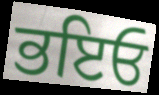
ਭਇਓ